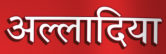
अल्लादिया